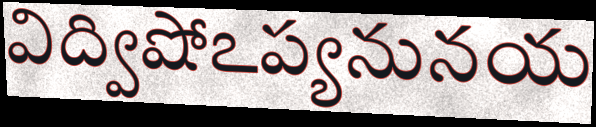
విద్విషోఽప్యనునయ